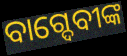
ବାଗ୍ଦେବୀଙ୍କ